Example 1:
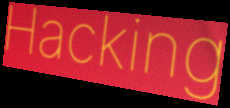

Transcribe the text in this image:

Hacking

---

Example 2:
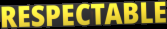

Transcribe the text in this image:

RESPECTABLE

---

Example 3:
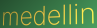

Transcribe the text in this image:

medellin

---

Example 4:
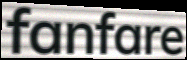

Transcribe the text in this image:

fanfare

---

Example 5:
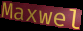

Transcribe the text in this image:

Maxwel